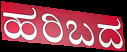
ಹರಿಬದ